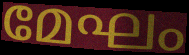
മേഘം